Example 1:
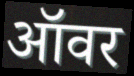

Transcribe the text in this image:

ऑवर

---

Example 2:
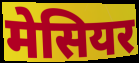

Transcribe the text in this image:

मेसियर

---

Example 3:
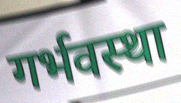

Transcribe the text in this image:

गर्भवस्था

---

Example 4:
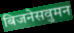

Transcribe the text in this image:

बिजनेसवुमन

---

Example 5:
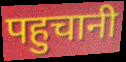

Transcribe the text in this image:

पहुचानी